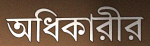
অধিকারীর